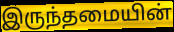
இருந்தமையின்